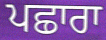
ਪਛਾਰਾ